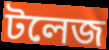
টলেজ